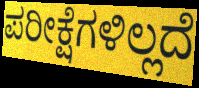
ಪರೀಕ್ಷೆಗಳಿಲ್ಲದೆ